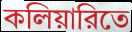
কলিয়ারিতে